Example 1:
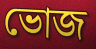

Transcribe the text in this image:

ভোজ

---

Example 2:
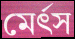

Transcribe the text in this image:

মের্ৎস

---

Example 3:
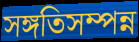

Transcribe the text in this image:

সঙ্গতিসম্পন্ন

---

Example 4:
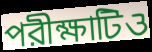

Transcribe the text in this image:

পরীক্ষাটিও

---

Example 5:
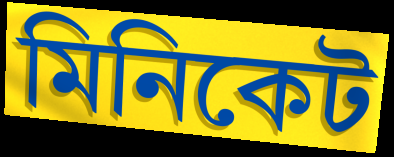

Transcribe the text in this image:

মিনিকেট